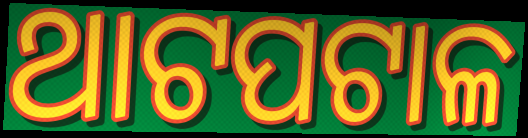
ଥାଟପଟାଳ